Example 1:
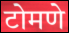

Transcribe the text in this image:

टोमणे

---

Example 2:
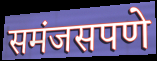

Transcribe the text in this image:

समंजसपणे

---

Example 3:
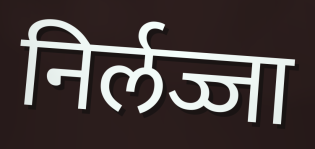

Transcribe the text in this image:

निर्लज्जा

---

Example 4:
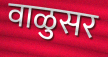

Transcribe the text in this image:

वाळुसर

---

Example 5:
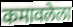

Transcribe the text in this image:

कमावलेला